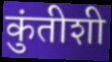
कुंतीशी